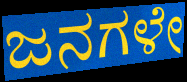
ಜನಗಳೇ